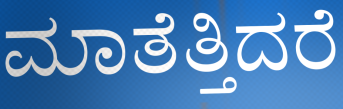
ಮಾತೆತ್ತಿದರೆ